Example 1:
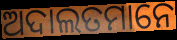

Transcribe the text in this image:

ଅଦାଲତମାନେ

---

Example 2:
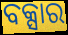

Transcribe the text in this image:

ବକ୍ସାର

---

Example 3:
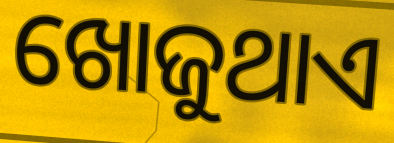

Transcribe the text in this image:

ଖୋଜୁଥାଏ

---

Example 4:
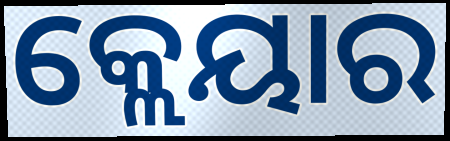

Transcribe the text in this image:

କ୍ଲେୟାର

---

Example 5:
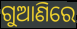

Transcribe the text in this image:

ଗୁଆଣିରେ